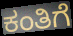
ಕಂತಿಗೆ